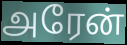
அரேன்